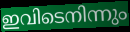
ഇവിടെനിന്നും